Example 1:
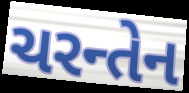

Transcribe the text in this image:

ચરન્તેન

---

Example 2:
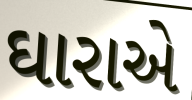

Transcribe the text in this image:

ઘારાએ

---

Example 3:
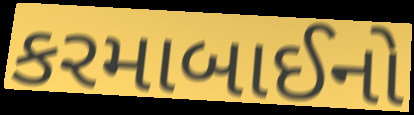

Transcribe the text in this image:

કરમાબાઈનો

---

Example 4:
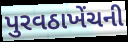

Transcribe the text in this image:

પુરવઠાખેંચની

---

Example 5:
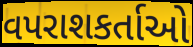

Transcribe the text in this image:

વપરાશકર્તાઓ